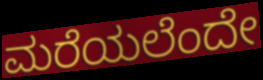
ಮರೆಯಲೆಂದೇ